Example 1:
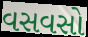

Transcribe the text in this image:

વસવસો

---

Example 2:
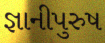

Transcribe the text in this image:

જ્ઞાનીપુરુષ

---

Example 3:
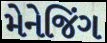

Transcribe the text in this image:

મેનેજિંગ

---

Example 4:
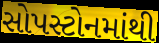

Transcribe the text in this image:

સોપસ્ટોનમાંથી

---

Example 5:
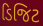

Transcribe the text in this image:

ડિજિટ